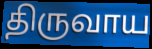
திருவாய